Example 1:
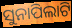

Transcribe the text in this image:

ସୁନାପିଲାଟି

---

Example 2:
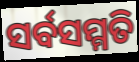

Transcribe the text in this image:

ସର୍ବସମ୍ମତି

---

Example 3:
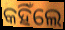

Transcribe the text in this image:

କହିଁଲେ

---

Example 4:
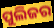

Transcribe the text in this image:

ପୁଲିଜର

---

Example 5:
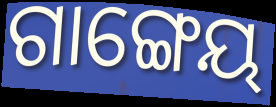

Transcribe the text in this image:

ଗାଙ୍ଗେୟ